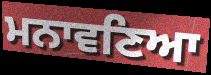
ਮਨਾਵਣਿਆ